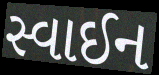
સ્વાઈન